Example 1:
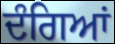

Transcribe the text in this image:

ਦੰਗਿਆਂ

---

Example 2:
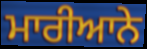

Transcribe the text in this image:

ਮਾਰੀਆਨੇ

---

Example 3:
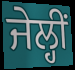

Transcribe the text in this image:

ਜੇਲ੍ਹੀਂ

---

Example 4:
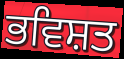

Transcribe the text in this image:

ਭਵਿਸ਼ਤ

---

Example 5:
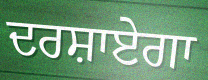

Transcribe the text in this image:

ਦਰਸ਼ਾਏਗਾ